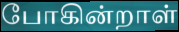
போகின்றாள்